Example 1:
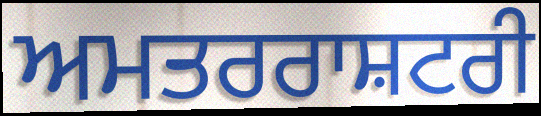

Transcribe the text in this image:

ਅਮਤਰਰਾਸ਼ਟਰੀ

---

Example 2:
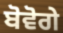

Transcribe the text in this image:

ਬੋਵੋਗੇ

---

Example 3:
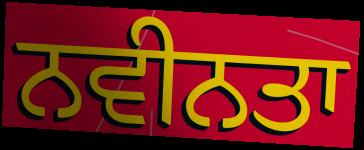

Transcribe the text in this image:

ਨਵੀਨਤਾ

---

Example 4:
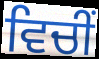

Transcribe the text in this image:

ਵਿਚੀਂ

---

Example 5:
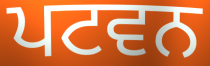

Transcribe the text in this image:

ਪਟਵਨ